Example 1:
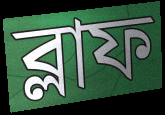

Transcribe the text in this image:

ব্লাফ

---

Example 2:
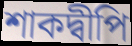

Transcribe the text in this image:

শাকদ্বীপি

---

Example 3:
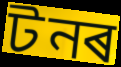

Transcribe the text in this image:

টনৰ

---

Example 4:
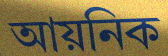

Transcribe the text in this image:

আয়নিক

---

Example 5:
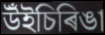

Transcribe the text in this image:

উঁইচিৰিঙা